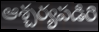
ఆశ్చర్యపడిరి